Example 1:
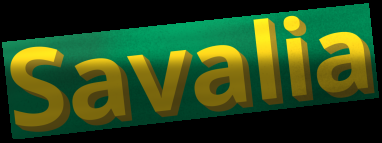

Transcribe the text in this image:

Savalia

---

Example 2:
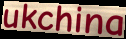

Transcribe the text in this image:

ukchina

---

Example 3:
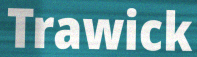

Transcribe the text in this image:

Trawick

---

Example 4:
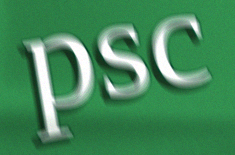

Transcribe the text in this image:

psc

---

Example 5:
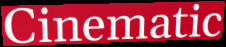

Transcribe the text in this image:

Cinematic